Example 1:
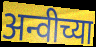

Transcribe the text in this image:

अन्वीच्या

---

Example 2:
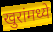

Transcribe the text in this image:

खुरांमध्ये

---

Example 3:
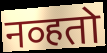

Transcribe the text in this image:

नव्हतो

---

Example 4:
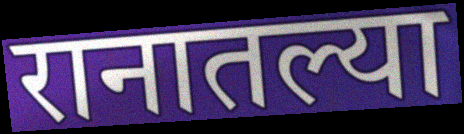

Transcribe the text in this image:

रानातल्या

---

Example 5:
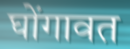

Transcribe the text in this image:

घोंगावत